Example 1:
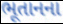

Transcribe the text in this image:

ભૂતાનના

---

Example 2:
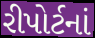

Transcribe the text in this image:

રીપોર્ટનાં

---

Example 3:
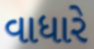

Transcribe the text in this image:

વાધારે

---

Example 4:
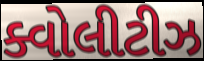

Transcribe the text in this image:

ક્વોલીટીઝ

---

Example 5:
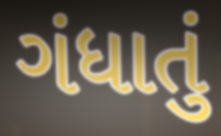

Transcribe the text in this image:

ગંધાતું